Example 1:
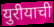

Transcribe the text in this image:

युरीयाची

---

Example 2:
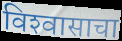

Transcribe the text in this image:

विश्वासाचा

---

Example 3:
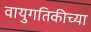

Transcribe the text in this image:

वायुगतिकीच्या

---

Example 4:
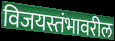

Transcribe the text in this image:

विजयस्तंभावरील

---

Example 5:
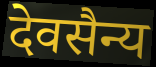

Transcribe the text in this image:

देवसैन्य